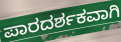
ಪಾರದರ್ಶಕವಾಗಿ